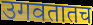
उगवतातच